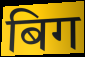
बिग